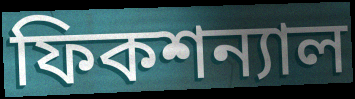
ফিকশন্যাল